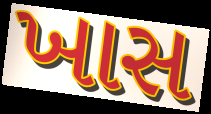
ખાસ